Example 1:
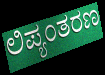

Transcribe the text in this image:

ಲಿಪ್ಯಂತರಣ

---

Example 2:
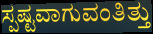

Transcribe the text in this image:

ಸ್ಪಷ್ಟವಾಗುವಂತಿತ್ತು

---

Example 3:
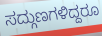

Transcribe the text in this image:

ಸದ್ಗುಣಗಳಿದ್ದರೂ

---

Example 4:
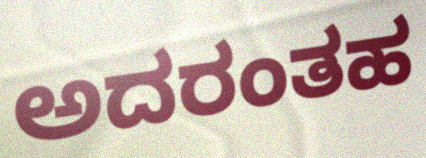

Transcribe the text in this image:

ಅದರಂತಹ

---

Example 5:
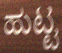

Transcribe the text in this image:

ಹುಟ್ಟ